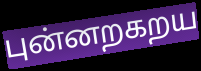
புன்னறகறய